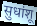
सुधांशू